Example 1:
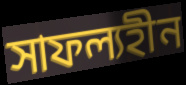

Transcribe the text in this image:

সাফল্যহীন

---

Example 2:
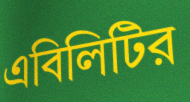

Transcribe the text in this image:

এবিলিটির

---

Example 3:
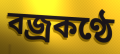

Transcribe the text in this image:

বজ্রকণ্ঠে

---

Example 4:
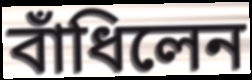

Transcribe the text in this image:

বাঁধিলেন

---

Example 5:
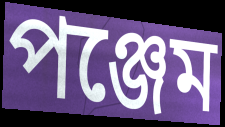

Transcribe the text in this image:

পঞ্জেম